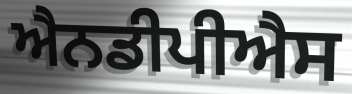
ਐਨਡੀਪੀਐਸ